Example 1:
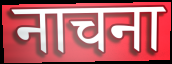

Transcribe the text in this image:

नाचना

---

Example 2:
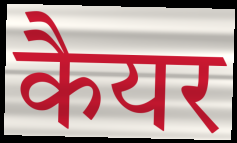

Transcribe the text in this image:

कैयर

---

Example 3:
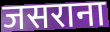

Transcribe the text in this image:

जसराना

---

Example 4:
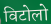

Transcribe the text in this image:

विटोलो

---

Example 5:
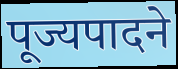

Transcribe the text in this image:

पूज्यपादने